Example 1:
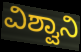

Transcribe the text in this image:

ವಿಶ್ವಾನಿ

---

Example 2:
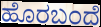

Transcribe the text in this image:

ಹೊರಬಂದೆ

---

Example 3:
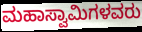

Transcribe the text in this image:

ಮಹಾಸ್ವಾಮಿಗಳವರು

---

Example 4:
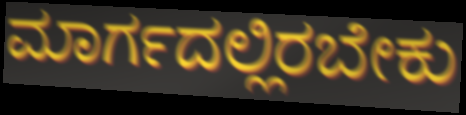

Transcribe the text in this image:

ಮಾರ್ಗದಲ್ಲಿರಬೇಕು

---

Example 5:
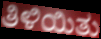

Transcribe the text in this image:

ತಿಳಿಯಿತು